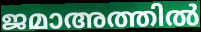
ജമാഅത്തിൽ